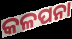
କଳପନା